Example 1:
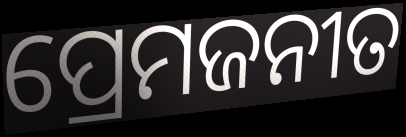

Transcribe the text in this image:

ପ୍ରେମଜନୀତ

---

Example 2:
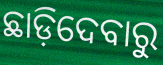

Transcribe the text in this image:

ଛାଡ଼ିଦେବାରୁ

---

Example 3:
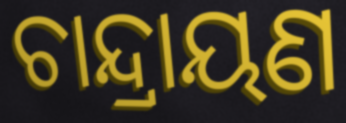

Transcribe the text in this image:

ଚାନ୍ଦ୍ରାୟଣ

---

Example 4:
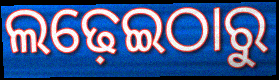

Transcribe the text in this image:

ଲଢ଼େଇଠାରୁ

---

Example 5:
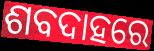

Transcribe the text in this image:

ଶବଦାହରେ